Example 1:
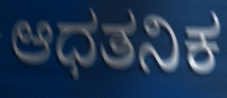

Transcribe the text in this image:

ಆಧತನಿಕ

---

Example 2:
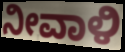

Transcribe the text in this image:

ನೀವಾಳಿ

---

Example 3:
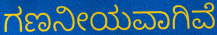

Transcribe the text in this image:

ಗಣನೀಯವಾಗಿವೆ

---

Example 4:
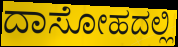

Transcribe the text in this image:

ದಾಸೋಹದಲ್ಲಿ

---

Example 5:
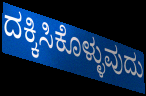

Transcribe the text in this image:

ದಕ್ಕಿಸಿಕೊಳ್ಳುವುದು